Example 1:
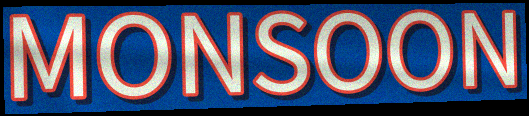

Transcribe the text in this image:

MONSOON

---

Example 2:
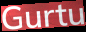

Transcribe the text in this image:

Gurtu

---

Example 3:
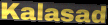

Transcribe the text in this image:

Kalasad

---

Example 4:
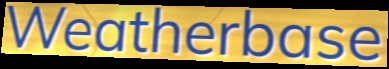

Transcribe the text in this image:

Weatherbase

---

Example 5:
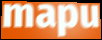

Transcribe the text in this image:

mapu